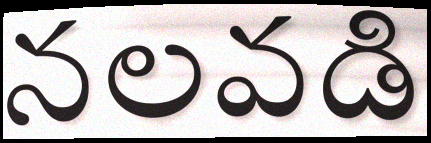
నలవడి